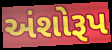
અંશોરૂપ